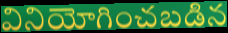
వినియోగించబడిన